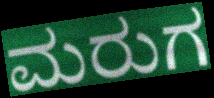
ಮರುಗ